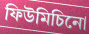
ফিউমিচিনো